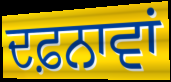
ਦਫ਼ਨਾਵਾਂ